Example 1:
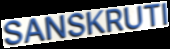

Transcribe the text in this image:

SANSKRUTI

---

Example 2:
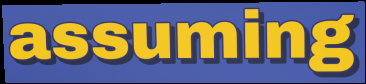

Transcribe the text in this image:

assuming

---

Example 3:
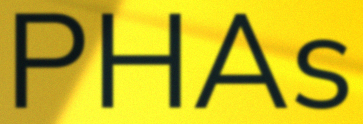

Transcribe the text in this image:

PHAs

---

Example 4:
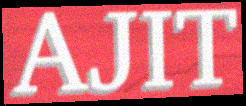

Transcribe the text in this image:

AJIT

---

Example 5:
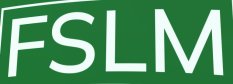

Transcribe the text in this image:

FSLM